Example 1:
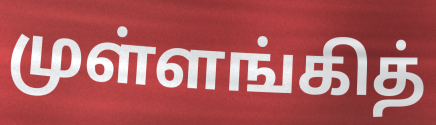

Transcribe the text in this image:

முள்ளங்கித்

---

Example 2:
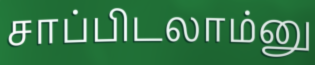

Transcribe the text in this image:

சாப்பிடலாம்னு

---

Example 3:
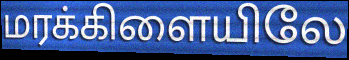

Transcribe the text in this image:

மரக்கிளையிலே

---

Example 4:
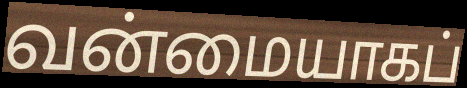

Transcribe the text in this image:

வன்மையாகப்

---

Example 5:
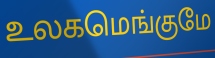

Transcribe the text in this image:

உலகமெங்குமே